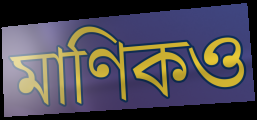
মাণিকও